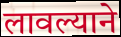
लावल्याने